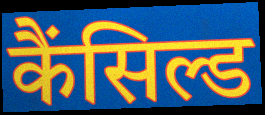
कैंसिल्ड